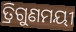
ତ୍ରିଗୁଣମୟୀ